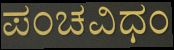
ಪಂಚವಿಧಂ